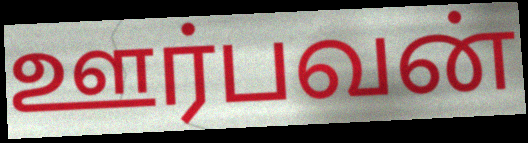
ஊர்பவன்